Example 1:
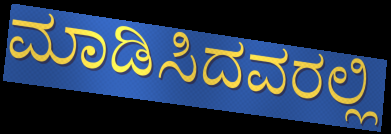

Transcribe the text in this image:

ಮಾಡಿಸಿದವರಲ್ಲಿ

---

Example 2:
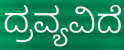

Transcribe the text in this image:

ದ್ರವ್ಯವಿದೆ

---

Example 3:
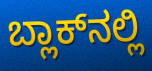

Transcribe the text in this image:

ಬ್ಲಾಕ್‌ನಲ್ಲಿ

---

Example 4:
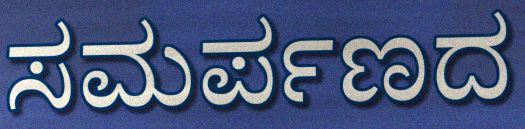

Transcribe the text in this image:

ಸಮರ್ಪಣದ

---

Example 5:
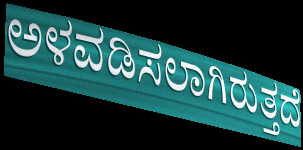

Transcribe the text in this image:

ಅಳವಡಿಸಲಾಗಿರುತ್ತದೆ